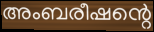
അംബരീഷന്റെ